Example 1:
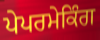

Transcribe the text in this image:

ਪੇਪਰਮੇਕਿੰਗ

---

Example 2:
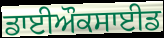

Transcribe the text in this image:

ਡਾਈਔਕਸਾਈਡ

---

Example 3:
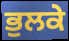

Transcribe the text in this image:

ਭੁਲਕੇ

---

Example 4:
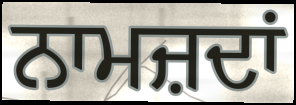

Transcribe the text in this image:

ਨਾਮਜ਼ਦਾਂ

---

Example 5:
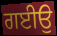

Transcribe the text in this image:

ਗਈਉ